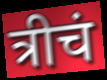
त्रीचं